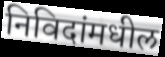
निविदांमधील